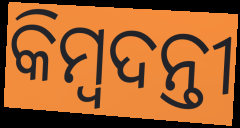
କିମ୍ଵଦନ୍ତୀ